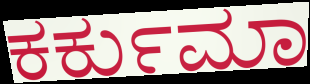
ಕರ್ಕುಮಾ